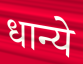
धान्ये